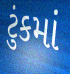
ટુંકમાં